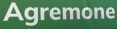
Agremone